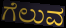
ಗೆಲುವ